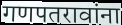
गणपतरावांना